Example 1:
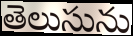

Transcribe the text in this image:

తెలుసును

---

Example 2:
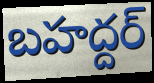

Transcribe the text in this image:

బహద్దర్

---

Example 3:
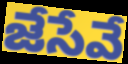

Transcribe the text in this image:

జేసేవే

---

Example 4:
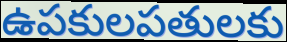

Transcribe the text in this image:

ఉపకులపతులకు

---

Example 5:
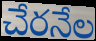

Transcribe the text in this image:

చేరనేల